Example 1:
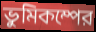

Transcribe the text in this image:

ভুমিকম্পের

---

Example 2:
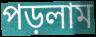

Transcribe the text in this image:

পড়লাম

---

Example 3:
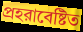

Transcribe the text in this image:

প্রহরাবেষ্টিত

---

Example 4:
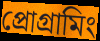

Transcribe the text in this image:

প্রোগ্রামিং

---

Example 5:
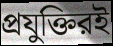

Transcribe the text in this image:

প্রযুক্তিরই